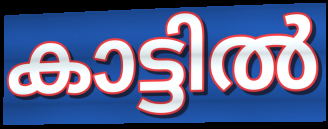
കാട്ടിൽ